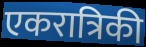
एकरात्रिकी